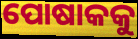
ପୋଷାକକୁ